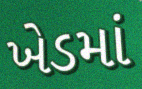
ખેડમાં